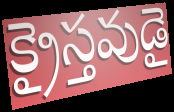
క్రైస్తవుడై